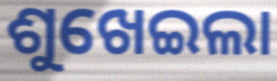
ଶୁଖେଇଲା